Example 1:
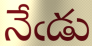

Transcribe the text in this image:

నేఁడు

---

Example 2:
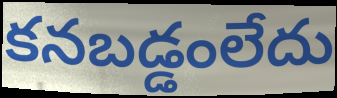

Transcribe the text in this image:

కనబడ్డంలేదు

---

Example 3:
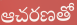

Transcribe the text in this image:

ఆచరణతో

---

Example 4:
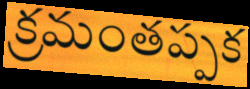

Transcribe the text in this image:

క్రమంతప్పక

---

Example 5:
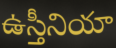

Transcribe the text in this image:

ఉస్తీనియా